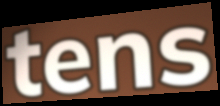
tens